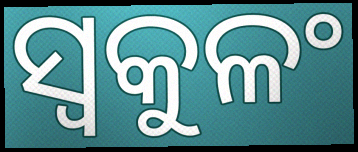
ସ୍ୱକୁଳଂ